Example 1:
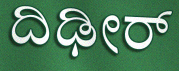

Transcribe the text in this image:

ದಿಢೀರ್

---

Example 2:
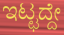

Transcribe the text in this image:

ಇಟ್ಟದ್ದೇ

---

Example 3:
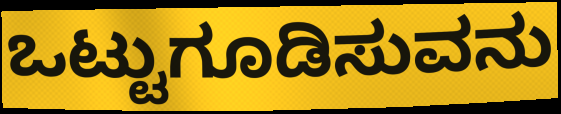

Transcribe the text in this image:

ಒಟ್ಟುಗೂಡಿಸುವನು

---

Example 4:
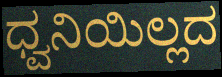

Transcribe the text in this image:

ಧ್ವನಿಯಿಲ್ಲದ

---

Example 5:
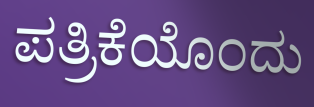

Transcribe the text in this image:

ಪತ್ರಿಕೆಯೊಂದು